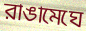
রাঙামেঘে